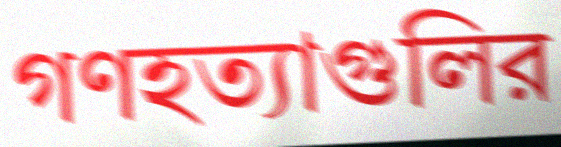
গণহত্যাগুলির